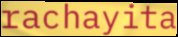
rachayita